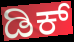
ಡಿಕ್